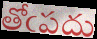
తోఁపదు